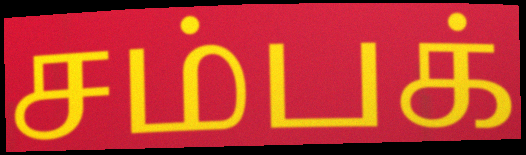
சம்பக்